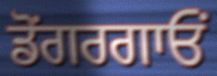
ਡੋਂਗਰਗਾਓਂ